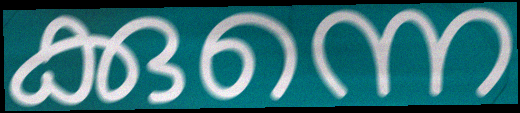
ക്കുന്നെ